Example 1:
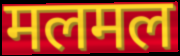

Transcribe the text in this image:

मलमल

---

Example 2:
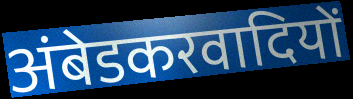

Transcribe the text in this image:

अंबेडकरवादियों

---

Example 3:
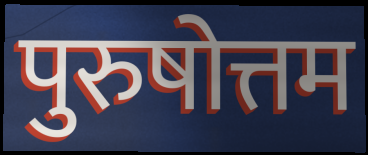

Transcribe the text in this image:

पुरुषोत्तम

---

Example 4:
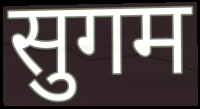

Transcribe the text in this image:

सुगम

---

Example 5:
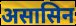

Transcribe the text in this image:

असासिन